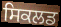
ਸਿਕਲਡ